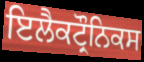
ਇਲੈਕਟ੍ਰੌਨਿਕਸ